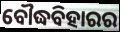
ବୌଦ୍ଧବିହାରର